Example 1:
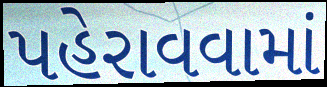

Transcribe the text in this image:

પહેરાવવામાં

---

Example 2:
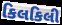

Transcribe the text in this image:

કિલકિલી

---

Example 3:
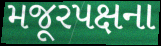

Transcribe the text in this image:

મજૂરપક્ષના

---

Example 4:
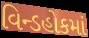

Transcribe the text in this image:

વિન્ડહોકમાં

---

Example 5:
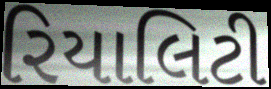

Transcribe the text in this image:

રિયાલિટી